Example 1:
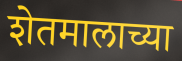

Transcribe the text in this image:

शेतमालाच्या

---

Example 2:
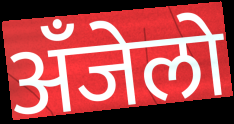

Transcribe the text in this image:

अँजेलो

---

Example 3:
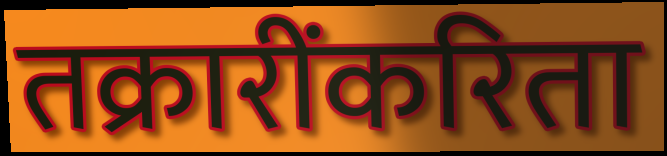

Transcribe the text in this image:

तक्रारींकरिता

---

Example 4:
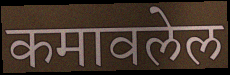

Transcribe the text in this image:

कमावलेल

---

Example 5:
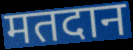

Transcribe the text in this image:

मतदान